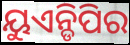
ୟୁଏନ୍ଡିପିର